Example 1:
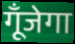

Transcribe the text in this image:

गूँजेगा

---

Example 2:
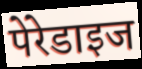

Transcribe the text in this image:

पेरेडाइज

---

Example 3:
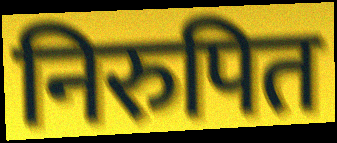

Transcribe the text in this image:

निरुपित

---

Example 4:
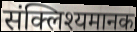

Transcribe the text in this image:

संक्लिश्यमानक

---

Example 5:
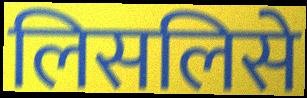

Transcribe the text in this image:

लिसलिसे